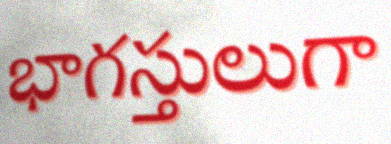
భాగస్తులుగా